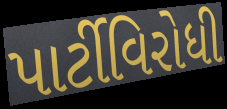
પાર્ટીવિરોધી